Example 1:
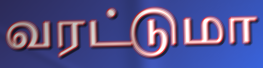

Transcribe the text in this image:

வரட்டுமா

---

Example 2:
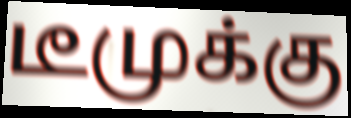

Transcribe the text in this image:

டீமுக்கு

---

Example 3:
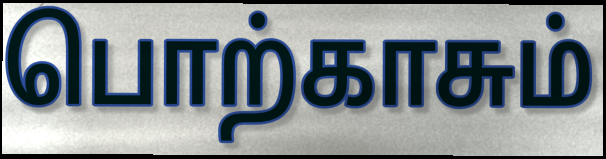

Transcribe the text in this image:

பொற்காசும்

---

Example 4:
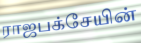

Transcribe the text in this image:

ராஜபக்சேயின்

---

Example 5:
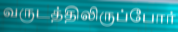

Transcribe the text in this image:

வருடத்திலிருப்போர்